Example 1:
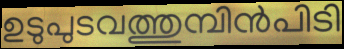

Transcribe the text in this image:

ഉടുപുടവത്തുമ്പിൻപിടി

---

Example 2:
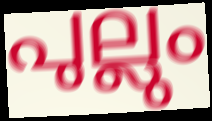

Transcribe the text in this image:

പുല്ലും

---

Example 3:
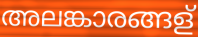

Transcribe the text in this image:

അലങ്കാരങ്ങള്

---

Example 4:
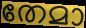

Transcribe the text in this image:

തേമാ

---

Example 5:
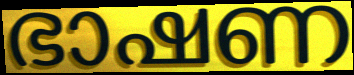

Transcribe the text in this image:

ഭാഷണ